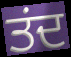
ਤਂਦ